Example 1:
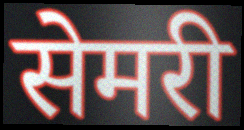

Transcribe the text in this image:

सेमरी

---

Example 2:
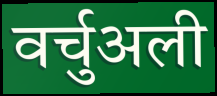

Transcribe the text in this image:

वर्चुअली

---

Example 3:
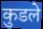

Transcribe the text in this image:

कुडले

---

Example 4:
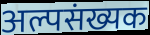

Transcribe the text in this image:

अल्पसंख्यक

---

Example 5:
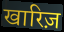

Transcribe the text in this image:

खारिज़